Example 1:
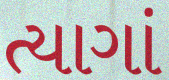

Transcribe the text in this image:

ત્યાગાં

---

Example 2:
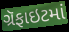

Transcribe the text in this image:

ગ્રૅફાઇટમાં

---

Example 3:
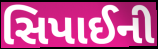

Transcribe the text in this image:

સિપાઈની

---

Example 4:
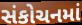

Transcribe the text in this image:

સંકોચનમાં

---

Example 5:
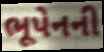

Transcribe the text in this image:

ભૂપેનની